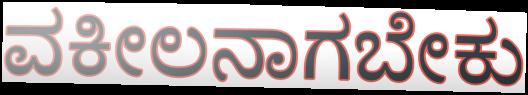
ವಕೀಲನಾಗಬೇಕು